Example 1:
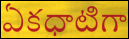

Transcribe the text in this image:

ఏకధాటిగా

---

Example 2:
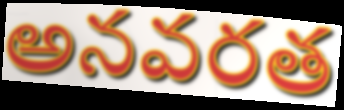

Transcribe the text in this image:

అనవరత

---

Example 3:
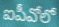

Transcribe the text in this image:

ఐపీవోలో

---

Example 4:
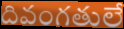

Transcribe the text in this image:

దివంగతులే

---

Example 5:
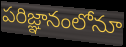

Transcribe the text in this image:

పరిజ్ఞానంలోనూ